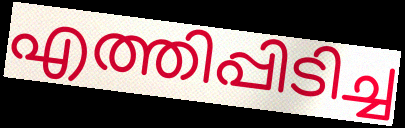
എത്തിപ്പിടിച്ച